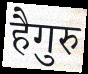
हैगुरु